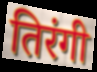
तिरंगी